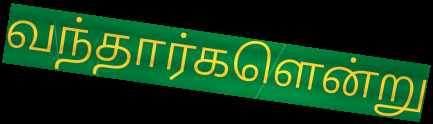
வந்தார்களென்று